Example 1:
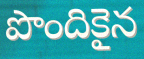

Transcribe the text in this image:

పొందికైన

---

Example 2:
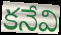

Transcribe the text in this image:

కనేవి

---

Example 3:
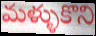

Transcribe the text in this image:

మళ్ళుకొని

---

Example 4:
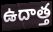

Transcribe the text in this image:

ఉదాత్త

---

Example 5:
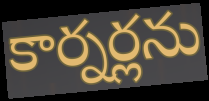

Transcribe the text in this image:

కార్నర్లను